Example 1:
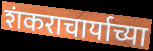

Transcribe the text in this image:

शंकराचार्याच्या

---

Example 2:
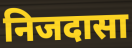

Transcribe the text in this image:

निजदासा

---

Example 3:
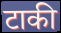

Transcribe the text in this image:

टाकी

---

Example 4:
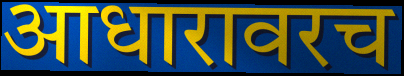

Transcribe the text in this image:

आधारावरच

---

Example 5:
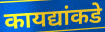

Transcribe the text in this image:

कायद्यांकडे